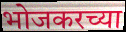
भोजकरच्या